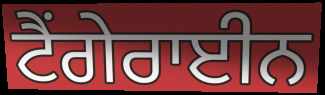
ਟੈਂਗੇਰਾਈਨ